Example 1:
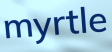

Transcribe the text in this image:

myrtle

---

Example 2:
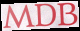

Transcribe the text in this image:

MDB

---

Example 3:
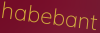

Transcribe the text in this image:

habebant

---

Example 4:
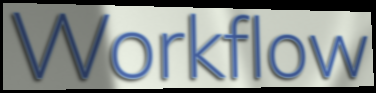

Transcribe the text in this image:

Workflow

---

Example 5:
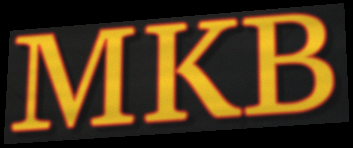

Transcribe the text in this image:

MKB